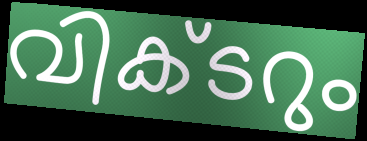
വിക്ടറും